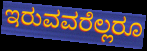
ಇರುವವರೆಲ್ಲರೂ